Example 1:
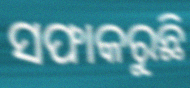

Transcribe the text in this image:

ସଫାକରୁଛି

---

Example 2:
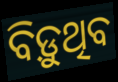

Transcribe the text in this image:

ବିଡ଼ୁଥିବ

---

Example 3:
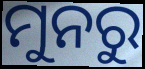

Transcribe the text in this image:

ମୁନରୁ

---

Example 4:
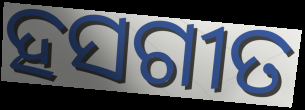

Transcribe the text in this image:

ହସଗୀତ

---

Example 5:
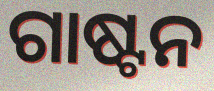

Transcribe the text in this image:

ଗାଷ୍ଟନ